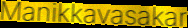
Manikkavasakar